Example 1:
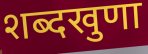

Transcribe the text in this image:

शब्दखुणा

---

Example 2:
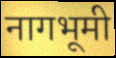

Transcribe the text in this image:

नागभूमी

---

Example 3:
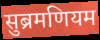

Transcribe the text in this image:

सुब्रमणियम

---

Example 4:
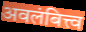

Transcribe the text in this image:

अवलंबित्त्व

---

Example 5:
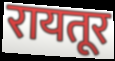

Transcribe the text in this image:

रायतूर